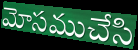
మోసముచేసి